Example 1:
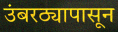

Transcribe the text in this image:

उंबरठ्यापासून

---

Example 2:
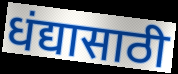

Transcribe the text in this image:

धंद्यासाठी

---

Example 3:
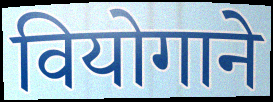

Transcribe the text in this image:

वियोगाने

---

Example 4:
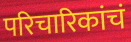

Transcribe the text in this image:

परिचारिकांचं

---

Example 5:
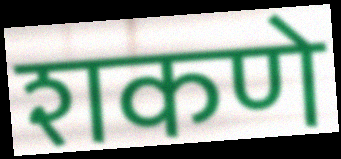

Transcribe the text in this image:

शकणे